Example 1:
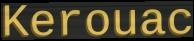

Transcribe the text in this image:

Kerouac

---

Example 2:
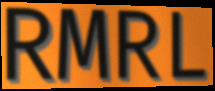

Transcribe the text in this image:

RMRL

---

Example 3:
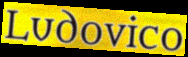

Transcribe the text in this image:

Ludovico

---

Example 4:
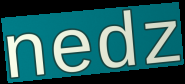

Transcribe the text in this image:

nedz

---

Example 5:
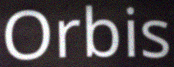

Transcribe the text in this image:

Orbis